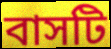
বাসটি